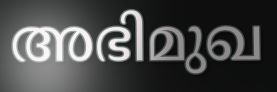
അഭിമുഖ